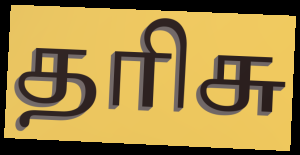
தரிசு